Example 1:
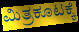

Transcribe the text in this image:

ಮಿತ್ರಕೂಟಕ್ಕೆ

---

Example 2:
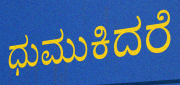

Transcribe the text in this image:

ಧುಮುಕಿದರೆ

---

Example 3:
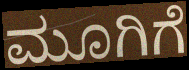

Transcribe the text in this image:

ಮೂಗಿಗೆ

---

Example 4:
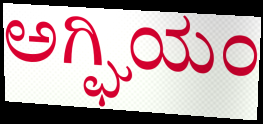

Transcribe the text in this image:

ಅಗ್ಘಿಯಂ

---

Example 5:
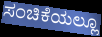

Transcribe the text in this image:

ಸಂಚಿಕೆಯಲ್ಲೂ